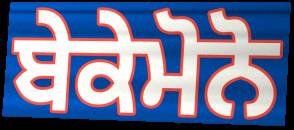
ਬੇਕੇਮੋਨੋ